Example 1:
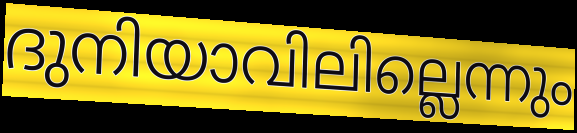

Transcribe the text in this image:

ദുനിയാവിലില്ലെന്നും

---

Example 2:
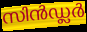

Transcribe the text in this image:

സിൻഡ്ലർ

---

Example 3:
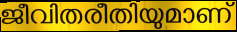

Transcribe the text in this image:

ജീവിതരീതിയുമാണ്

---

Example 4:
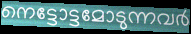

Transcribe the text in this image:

നെട്ടോട്ടമോടുന്നവർ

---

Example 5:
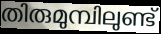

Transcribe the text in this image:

തിരുമുമ്പിലുണ്ട്